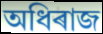
অধিৰাজ